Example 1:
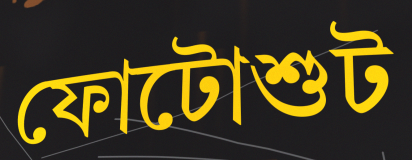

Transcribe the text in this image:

ফোটোশুট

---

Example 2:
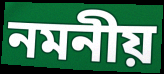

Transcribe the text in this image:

নমনীয়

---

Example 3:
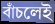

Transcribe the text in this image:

বাঁচলেই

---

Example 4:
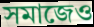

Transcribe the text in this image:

সমাজেও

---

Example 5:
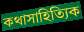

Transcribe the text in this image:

কথাসাহিত্যিক